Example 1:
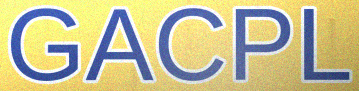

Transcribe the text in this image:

GACPL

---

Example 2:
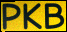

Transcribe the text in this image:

PKB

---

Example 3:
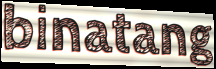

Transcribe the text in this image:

binatang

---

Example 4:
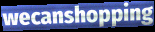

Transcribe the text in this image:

wecanshopping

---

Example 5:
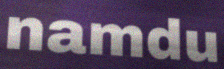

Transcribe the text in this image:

namdu